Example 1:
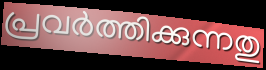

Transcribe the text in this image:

പ്രവർത്തിക്കുന്നതു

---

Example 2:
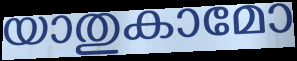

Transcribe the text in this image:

യാതുകാമോ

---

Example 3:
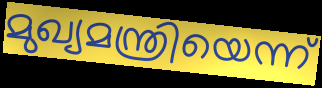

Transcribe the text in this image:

മുഖ്യമന്ത്രിയെന്ന്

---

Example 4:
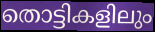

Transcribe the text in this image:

തൊട്ടികളിലും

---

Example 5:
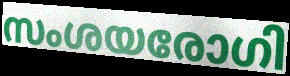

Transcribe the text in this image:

സംശയരോഗി